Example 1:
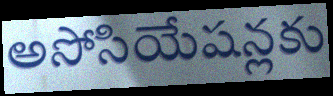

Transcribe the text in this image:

అసోసియేషన్లకు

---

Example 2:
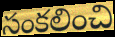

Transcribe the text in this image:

సంకలించి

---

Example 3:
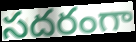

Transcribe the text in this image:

సదరంగా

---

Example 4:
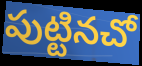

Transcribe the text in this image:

పుట్టినచో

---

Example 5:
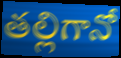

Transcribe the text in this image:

తల్లిగానో